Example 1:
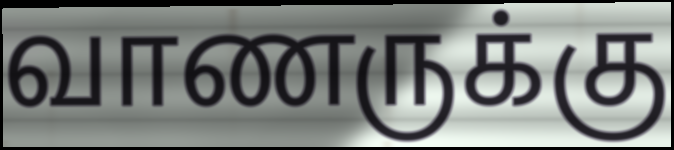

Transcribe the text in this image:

வாணருக்கு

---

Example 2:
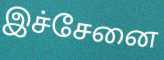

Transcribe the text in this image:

இச்சேனை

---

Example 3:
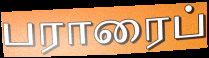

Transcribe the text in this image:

பராரைப்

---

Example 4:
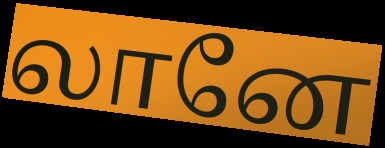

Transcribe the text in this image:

லானே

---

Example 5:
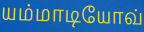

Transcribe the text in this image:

யம்மாடியோவ்